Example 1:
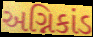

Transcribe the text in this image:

અગ્નિકાંડ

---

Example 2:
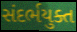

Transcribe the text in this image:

સંદર્ભયુક્ત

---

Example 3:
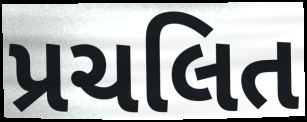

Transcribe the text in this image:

પ્રચલિત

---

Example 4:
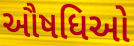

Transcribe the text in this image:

ઔષધિઓ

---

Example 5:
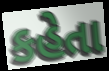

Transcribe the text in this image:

કહેતા